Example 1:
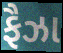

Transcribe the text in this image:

ફૈઝા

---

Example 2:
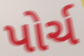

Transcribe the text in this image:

પોર્ચ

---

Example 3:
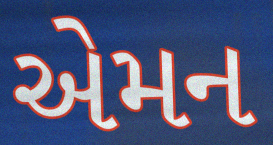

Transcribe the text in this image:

એમન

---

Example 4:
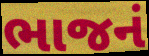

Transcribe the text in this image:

ભાજનં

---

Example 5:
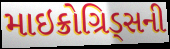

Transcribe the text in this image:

માઇક્રોગ્રિડ્સની